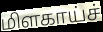
மிளகாய்ச்